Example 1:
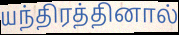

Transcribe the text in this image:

யந்திரத்தினால்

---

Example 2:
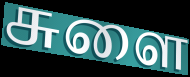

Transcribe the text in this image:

சுளை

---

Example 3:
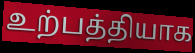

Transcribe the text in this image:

உற்பத்தியாக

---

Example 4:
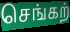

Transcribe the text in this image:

செங்கற்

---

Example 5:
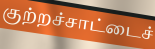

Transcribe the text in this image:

குற்றச்சாட்டைச்